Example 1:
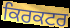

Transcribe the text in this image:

ਕਿਰਕਟਰ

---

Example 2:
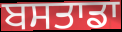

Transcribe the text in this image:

ਬਸਤਾਡਾ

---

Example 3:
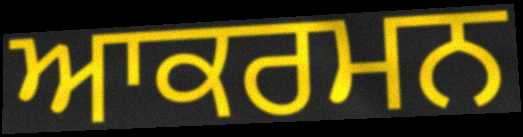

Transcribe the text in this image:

ਆਕਰਮਨ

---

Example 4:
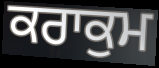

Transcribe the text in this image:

ਕਰਾਕੁਮ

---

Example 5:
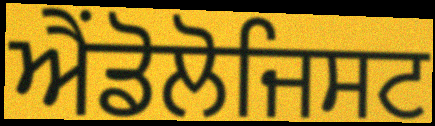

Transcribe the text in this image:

ਐਂਡੋਲੋਜਿਸਟ